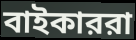
বাইকাররা